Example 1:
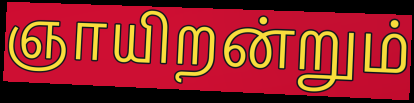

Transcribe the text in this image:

ஞாயிறன்றும்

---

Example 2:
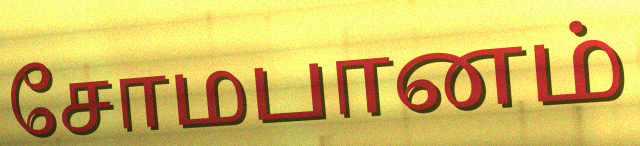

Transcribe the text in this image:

சோமபானம்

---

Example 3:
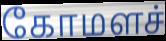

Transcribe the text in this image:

கோமளச்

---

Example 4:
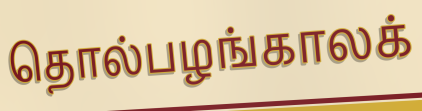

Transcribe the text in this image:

தொல்பழங்காலக்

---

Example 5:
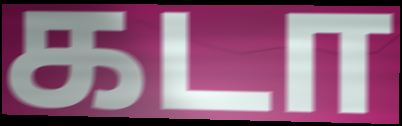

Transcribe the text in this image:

கடா